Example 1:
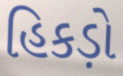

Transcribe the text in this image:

હિકડ઼ો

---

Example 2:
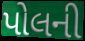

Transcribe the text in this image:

પોલની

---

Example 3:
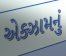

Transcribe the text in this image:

એક્ઝામનું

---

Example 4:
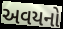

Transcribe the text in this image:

અવયનો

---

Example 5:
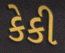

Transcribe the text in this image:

કેકી